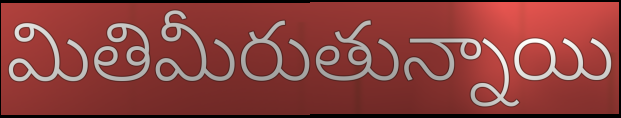
మితిమీరుతున్నాయి